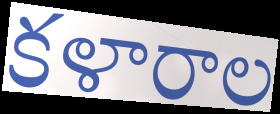
కళారాల